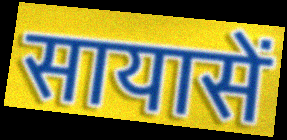
सायासें